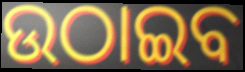
ଉଠାଇବ